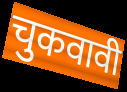
चुकवावी